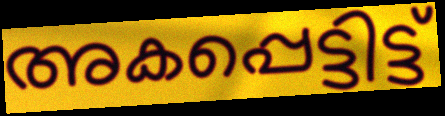
അകപ്പെട്ടിട്ട്